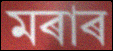
মৰাৰ